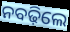
ନବଢ଼ିଲେ